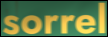
sorrel